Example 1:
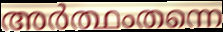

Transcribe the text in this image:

അർത്ഥംതന്നെ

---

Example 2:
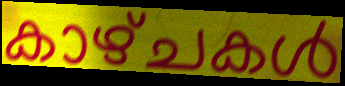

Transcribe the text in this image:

കാഴ്‌ചകൾ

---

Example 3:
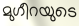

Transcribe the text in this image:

മുഗീറയുടെ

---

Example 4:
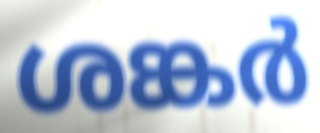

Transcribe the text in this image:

ശങ്കർ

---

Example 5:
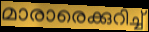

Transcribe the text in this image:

മാരാരെക്കുറിച്ച്